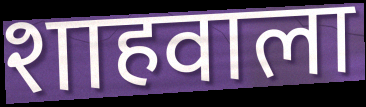
शाहवाला